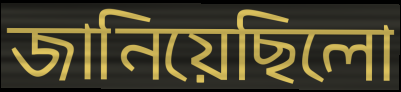
জানিয়েছিলো